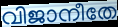
വിജാനീതേ